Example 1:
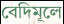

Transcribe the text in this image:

বেদিমূলে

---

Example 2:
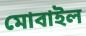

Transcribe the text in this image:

মোবাইল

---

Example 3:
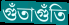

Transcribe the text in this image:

গুঁতাগুঁতি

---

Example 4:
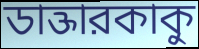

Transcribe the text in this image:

ডাক্তারকাকু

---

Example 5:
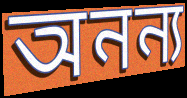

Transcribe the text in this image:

অনন্য